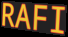
RAFI